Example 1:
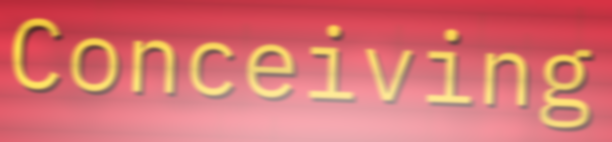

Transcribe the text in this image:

Conceiving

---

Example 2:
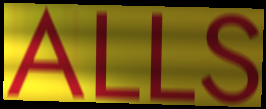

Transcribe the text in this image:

ALLS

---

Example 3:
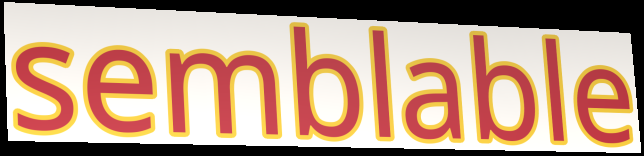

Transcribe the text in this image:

semblable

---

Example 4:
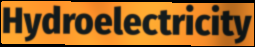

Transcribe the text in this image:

Hydroelectricity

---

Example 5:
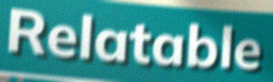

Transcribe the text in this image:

Relatable